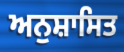
ਅਨੁਸ਼ਾਸਿਤ